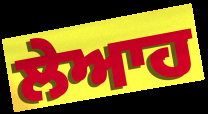
ਲੇਆਹ